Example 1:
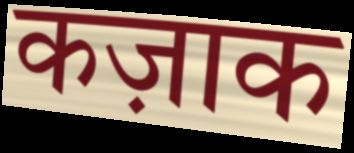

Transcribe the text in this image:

कज़ाक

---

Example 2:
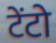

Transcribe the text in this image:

टेंटो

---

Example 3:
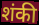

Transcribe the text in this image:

शंकी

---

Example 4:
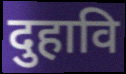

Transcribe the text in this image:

दुहावि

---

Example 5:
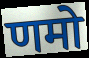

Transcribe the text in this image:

णमो